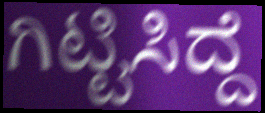
ಗಿಟ್ಟಿಸಿದ್ದೆ